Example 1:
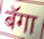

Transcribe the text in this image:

बॅगा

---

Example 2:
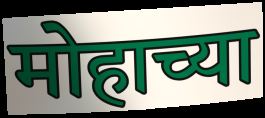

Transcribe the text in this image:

मोहाच्या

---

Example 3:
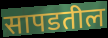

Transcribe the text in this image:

सापडतील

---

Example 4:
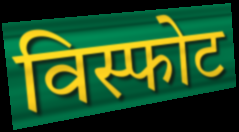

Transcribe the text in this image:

विस्फोट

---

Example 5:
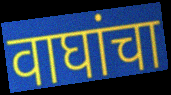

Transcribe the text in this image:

वाघांचा